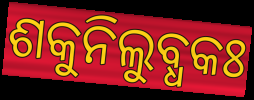
ଶକୁନିଲୁବ୍ଧକଃ